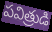
పవిత్రుడి